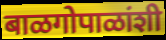
बाळगोपाळांशी